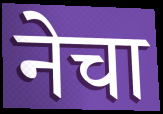
नेचा